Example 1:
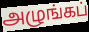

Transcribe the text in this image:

அழுங்கப்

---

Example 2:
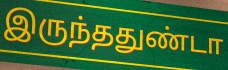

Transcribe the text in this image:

இருந்ததுண்டா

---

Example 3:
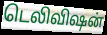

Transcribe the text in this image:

டெலிவிஷன்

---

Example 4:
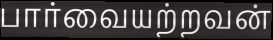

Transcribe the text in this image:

பார்வையற்றவன்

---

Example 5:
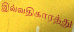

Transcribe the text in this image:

இவ்வதிகாரத்து